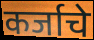
कर्जाचे